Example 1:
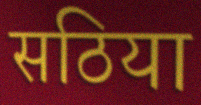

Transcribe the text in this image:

सठिया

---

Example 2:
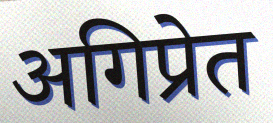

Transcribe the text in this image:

अगिप्रेत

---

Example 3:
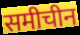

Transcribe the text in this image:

समीचीन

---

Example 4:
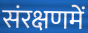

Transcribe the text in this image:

संरक्षणमें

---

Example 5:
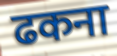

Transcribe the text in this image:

ढकना